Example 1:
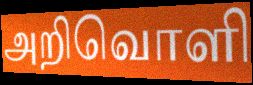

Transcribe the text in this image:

அறிவொளி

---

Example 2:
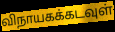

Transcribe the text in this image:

விநாயகக்கடவுள்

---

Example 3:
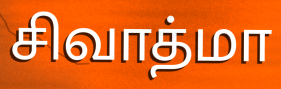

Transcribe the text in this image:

சிவாத்மா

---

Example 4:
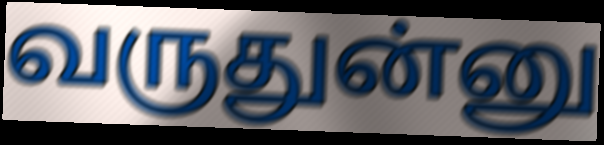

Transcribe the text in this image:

வருதுன்னு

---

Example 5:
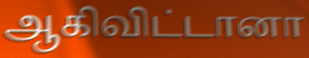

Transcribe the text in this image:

ஆகிவிட்டானா